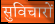
सुविचारों